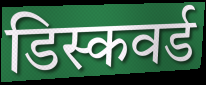
डिस्कवर्ड